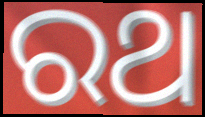
ରଥ